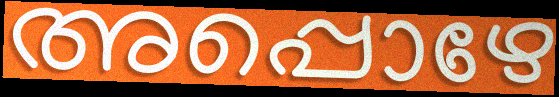
അപ്പൊഴേ